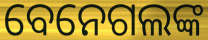
ବେନେଗଲଙ୍କ